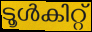
ടൂൾകിറ്റ്